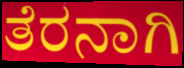
ತೆರನಾಗಿ